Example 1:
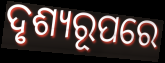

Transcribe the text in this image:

ଦୃଶ୍ୟରୂପରେ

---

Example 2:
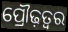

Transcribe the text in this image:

ପ୍ରୌଢ଼ତ୍ୱର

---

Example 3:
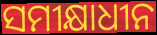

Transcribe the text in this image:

ସମୀକ୍ଷାଧୀନ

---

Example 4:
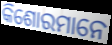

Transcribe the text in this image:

କିଶୋରମାନେ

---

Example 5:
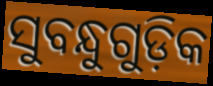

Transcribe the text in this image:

ସୁବନ୍ଧୁଗୁଡ଼ିକ